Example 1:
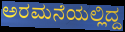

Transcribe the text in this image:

ಅರಮನೆಯಲ್ಲಿದ್ದ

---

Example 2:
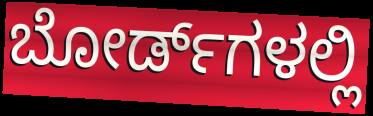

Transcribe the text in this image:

ಬೋರ್ಡ್‌ಗಳಲ್ಲಿ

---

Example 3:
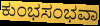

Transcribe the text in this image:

ಕುಂಭಸಂಭವಾ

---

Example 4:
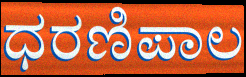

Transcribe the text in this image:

ಧರಣಿಪಾಲ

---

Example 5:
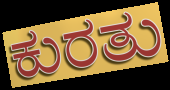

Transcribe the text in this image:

ಕುರತು